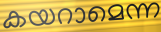
കയറാമെന്ന